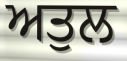
ਅਤੁਲ